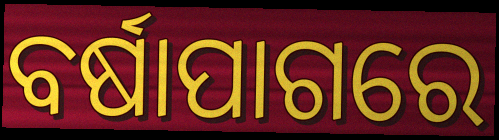
ବର୍ଷାପାଗରେ